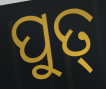
ପୁତ୍